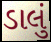
ડાલું